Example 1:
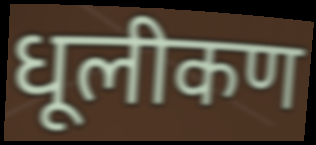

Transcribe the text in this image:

धूलीकण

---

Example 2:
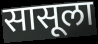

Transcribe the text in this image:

सासूला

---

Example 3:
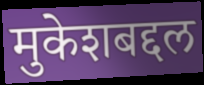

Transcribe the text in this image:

मुकेशबद्दल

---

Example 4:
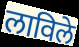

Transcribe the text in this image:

लाविले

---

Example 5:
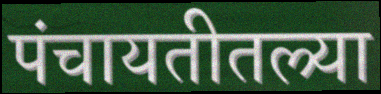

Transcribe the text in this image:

पंचायतीतल्या